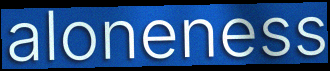
aloneness